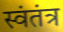
स्वंतंत्र